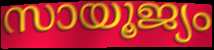
സായൂജ്യം